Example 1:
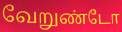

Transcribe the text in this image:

வேறுண்டோ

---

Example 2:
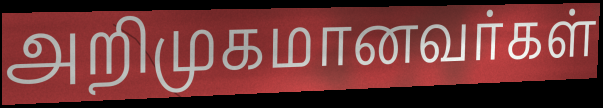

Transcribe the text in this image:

அறிமுகமானவர்கள்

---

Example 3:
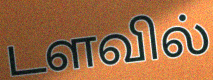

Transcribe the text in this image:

டளவில்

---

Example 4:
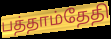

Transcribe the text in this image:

பத்தாம்தேதி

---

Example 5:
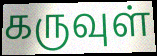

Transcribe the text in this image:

கருவுள்